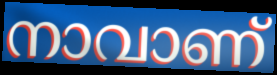
നാവാണ്